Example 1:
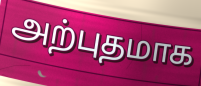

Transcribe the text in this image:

அற்புதமாக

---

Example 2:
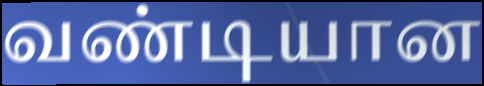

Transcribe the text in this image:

வண்டியான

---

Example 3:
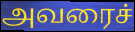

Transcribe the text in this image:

அவரைச்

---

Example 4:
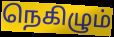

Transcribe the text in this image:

நெகிழும்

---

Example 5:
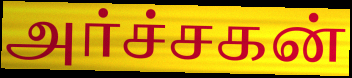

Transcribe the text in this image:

அர்ச்சகன்